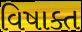
વિષાક્ત